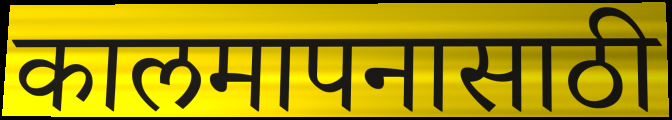
कालमापनासाठी